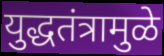
युद्धतंत्रामुळे